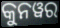
କୁନୱର